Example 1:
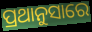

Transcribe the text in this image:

ପ୍ରଥାନୁସାରେ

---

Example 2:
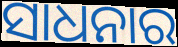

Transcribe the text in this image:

ସାଧନାର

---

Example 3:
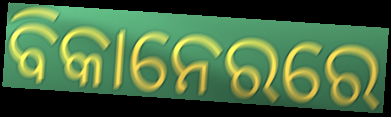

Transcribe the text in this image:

ବିକାନେରରେ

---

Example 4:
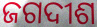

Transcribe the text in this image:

ଜଗଦୀଶ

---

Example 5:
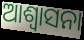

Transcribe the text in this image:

ଆଶ୍ଵାସନା